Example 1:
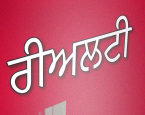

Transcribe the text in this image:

ਰੀਅਲਟੀ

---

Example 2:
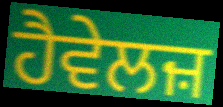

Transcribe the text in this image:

ਹੈਵੇਲਜ਼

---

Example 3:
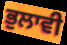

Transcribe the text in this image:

ਭੁਲਾਵੀ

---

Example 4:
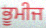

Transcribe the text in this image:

ਭੂਮੀਜ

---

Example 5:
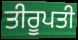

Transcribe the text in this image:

ਤੀਰੂਪਤੀ